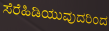
ಸೆರೆಹಿಡಿಯುವುದರಿಂದ